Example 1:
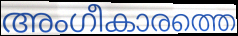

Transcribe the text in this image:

അംഗീകാരത്തെ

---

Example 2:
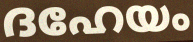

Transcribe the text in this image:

ദഹേയം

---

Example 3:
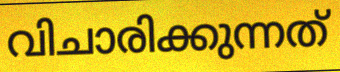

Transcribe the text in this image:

വിചാരിക്കുന്നത്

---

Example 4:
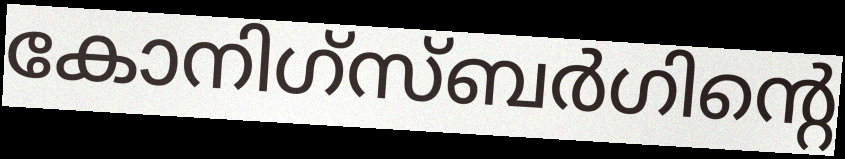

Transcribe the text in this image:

കോനിഗ്സ്ബർഗിന്റെ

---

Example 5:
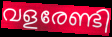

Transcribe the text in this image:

വളരേണ്ടി